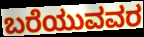
ಬರೆಯುವವರ